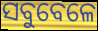
ସବୁବେଳେ